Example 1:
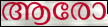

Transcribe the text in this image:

ആരോ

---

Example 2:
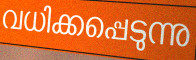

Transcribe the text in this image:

വധിക്കപ്പെടുന്നു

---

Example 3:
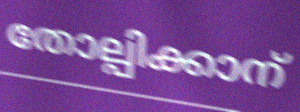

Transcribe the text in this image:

തോല്പിക്കാന്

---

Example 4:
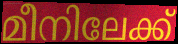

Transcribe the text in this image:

മീനിലേക്ക്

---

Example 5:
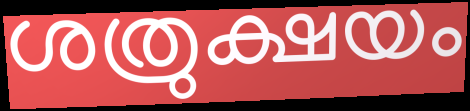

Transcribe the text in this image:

ശത്രുക്ഷയം